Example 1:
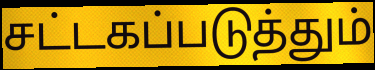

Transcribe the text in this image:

சட்டகப்படுத்தும்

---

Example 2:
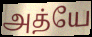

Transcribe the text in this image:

அத்யே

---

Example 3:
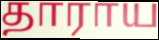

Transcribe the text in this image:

தாராய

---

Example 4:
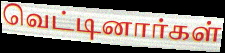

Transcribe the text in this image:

வெட்டினார்கள்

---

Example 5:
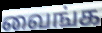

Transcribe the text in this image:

வைங்க